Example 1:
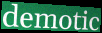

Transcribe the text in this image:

demotic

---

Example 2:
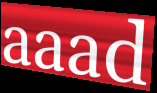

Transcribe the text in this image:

aaad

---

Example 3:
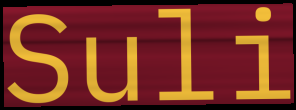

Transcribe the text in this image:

Suli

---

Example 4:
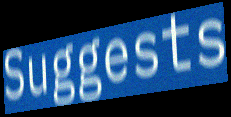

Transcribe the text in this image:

Suggests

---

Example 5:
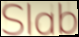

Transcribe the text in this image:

Slab